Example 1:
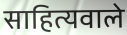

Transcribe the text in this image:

साहित्यवाले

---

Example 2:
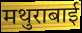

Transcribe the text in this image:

मथुराबाई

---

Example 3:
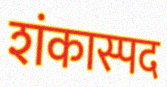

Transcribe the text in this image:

शंकास्पद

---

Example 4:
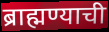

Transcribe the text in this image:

ब्राह्मण्याची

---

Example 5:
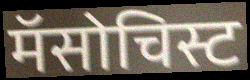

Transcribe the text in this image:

मॅसोचिस्ट